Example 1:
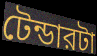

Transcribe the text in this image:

টেন্ডারটা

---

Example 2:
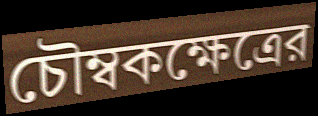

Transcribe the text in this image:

চৌম্বকক্ষেত্রের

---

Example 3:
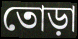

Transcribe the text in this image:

তোড়া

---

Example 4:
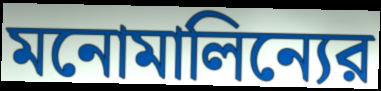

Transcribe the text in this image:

মনোমালিন্যের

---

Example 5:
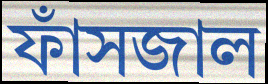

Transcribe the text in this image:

ফাঁসজাল